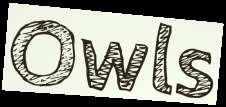
Owls